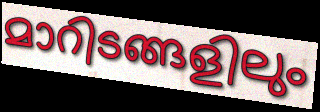
മാറിടങ്ങളിലും